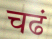
चढं